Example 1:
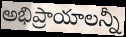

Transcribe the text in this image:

అభిప్రాయాలన్నీ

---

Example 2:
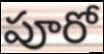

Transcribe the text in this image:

పూరో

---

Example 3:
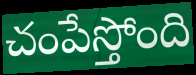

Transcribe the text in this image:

చంపేస్తోంది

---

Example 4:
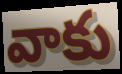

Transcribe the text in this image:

వాకు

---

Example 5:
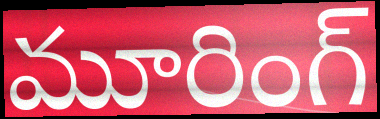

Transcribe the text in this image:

మూరింగ్